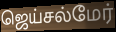
ஜெய்சல்மேர்